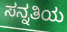
ಸನ್ನತಿಯ